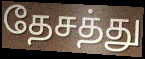
தேசத்து